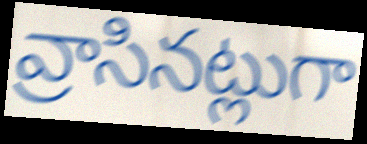
వ్రాసినట్లుగా